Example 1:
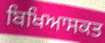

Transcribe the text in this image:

ਬਿਖਿਆਸਕਤ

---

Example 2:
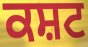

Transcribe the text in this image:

ਕਸ਼ਟ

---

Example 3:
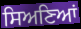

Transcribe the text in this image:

ਸਿਅਣਿਆਂ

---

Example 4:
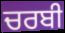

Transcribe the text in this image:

ਚਰਬੀ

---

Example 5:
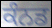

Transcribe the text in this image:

ਕੰਨਡ